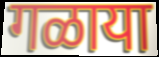
गळाया